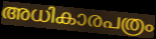
അധികാരപത്രം